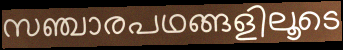
സഞ്ചാരപഥങ്ങളിലൂടെ